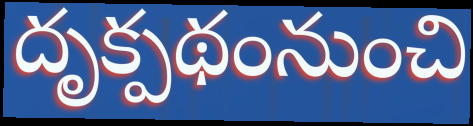
దృక్పథంనుంచి